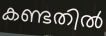
കണ്ടതിൽ